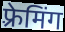
फ़्रेमिंग